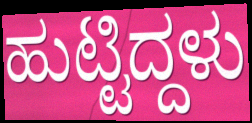
ಹುಟ್ಟಿದ್ದಳು